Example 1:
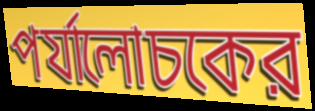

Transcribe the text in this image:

পর্যালোচকের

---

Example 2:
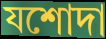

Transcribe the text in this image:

যশোদা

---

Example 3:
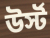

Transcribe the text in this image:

উর্স্ট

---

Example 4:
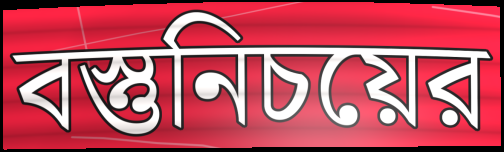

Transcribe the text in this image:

বস্তুনিচয়ের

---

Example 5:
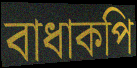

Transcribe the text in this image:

বাধাকপি